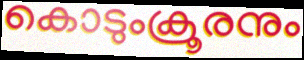
കൊടുംക്രൂരനും